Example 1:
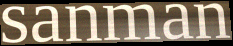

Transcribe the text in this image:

sanman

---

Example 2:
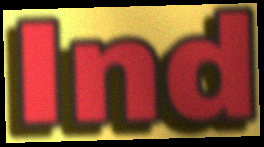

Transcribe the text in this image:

Ind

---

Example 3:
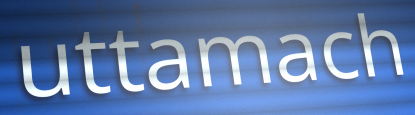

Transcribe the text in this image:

uttamach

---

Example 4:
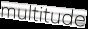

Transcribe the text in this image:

multitude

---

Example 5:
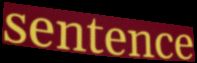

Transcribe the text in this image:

sentence